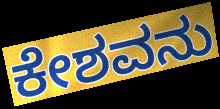
ಕೇಶವನು